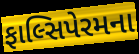
ફાલ્સિપેરમના